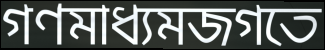
গণমাধ্যমজগতে